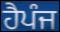
ਹੈਪੰਜ